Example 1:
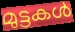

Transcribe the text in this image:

മുട്ടകൾ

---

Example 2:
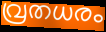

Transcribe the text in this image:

വ്രതധരം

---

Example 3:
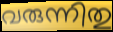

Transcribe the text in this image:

വരുന്നിതു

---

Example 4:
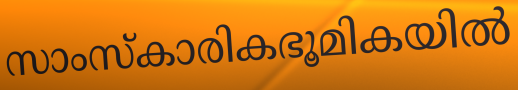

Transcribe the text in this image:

സാംസ്കാരികഭൂമികയിൽ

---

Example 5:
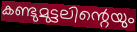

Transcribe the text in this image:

കണ്ടുമുട്ടലിന്റെയും